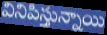
వినిపిస్తున్నాయి